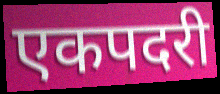
एकपदरी